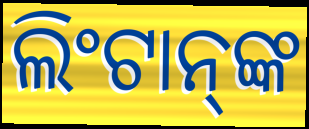
ଲିଂଟାନ୍‍ଙ୍କ